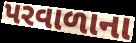
પરવાળાના